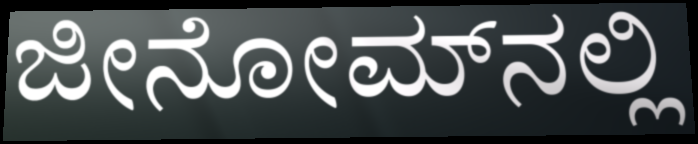
ಜೀನೋಮ್‌ನಲ್ಲಿ